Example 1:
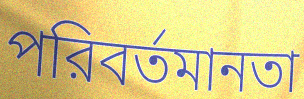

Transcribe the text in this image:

পরিবর্তমানতা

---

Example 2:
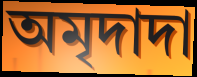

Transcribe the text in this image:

অমৃদাদা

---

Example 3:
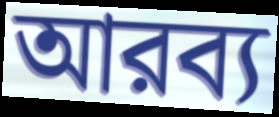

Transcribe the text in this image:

আরব্য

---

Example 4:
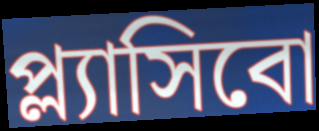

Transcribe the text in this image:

প্ল্যাসিবো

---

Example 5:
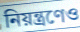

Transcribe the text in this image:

নিয়ন্ত্রণেও